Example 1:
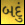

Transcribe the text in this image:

બદું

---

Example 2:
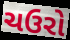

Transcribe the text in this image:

ચઉરો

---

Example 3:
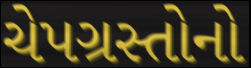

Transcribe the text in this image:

ચેપગ્રસ્તોનો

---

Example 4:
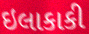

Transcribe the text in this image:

ઇલાકાકી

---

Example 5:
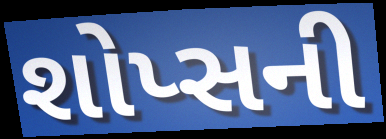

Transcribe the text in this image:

શોપ્સની